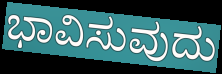
ಭಾವಿಸುವುದು